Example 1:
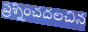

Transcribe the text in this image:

ప్రశ్నించదలచిన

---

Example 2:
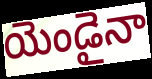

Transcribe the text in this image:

యెండైనా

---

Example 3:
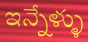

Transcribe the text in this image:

ఇన్నేళ్ళు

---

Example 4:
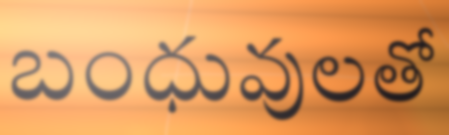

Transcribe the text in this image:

బంధువులతో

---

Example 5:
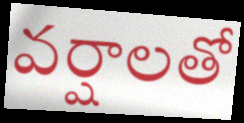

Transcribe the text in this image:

వర్షాలతో